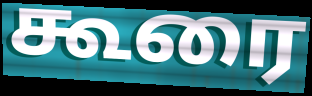
கூரை